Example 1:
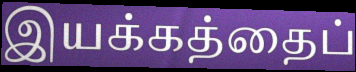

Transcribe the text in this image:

இயக்கத்தைப்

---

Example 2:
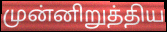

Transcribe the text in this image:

முன்னிறுத்திய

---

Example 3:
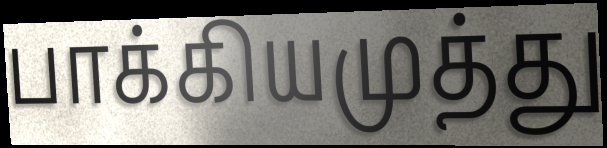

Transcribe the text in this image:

பாக்கியமுத்து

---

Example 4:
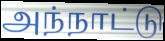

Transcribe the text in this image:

அந்நாட்டு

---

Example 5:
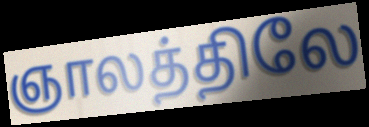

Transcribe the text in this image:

ஞாலத்திலே